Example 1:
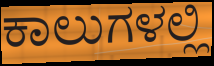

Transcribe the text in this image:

ಕಾಲುಗಳಲ್ಲಿ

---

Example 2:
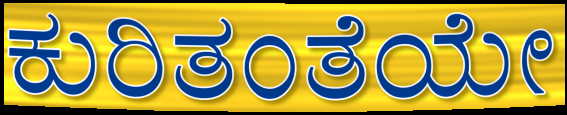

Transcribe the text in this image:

ಕುರಿತಂತೆಯೇ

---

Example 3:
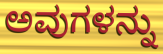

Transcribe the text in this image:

ಅವುಗಳನ್ನು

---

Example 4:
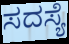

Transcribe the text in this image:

ಸದಸ್ಯೆ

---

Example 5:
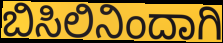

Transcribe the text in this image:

ಬಿಸಿಲಿನಿಂದಾಗಿ